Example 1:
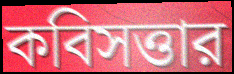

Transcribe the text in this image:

কবিসত্তার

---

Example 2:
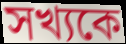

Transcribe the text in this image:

সখ্যকে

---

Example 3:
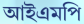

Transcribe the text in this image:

আইএমপি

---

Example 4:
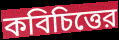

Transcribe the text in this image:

কবিচিত্তের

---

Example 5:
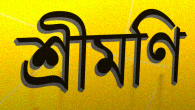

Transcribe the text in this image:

শ্রীমণি